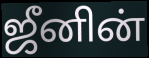
ஜீனின்